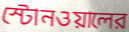
স্টোনওয়ালের